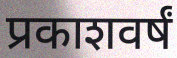
प्रकाशवर्षं